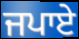
ਜਪਾਏ